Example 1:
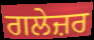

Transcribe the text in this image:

ਗਲੇਜ਼ਰ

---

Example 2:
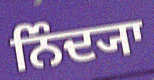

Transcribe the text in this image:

ਨਿੰਦ੍ਯਾ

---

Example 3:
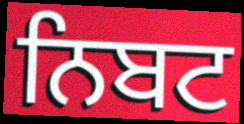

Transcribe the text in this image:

ਨਿਬਟ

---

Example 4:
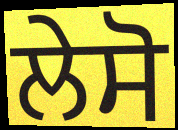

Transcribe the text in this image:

ਲੇਸੋ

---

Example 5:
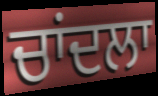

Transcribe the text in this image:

ਚਾਂਦਲਾ